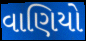
વાણિયો